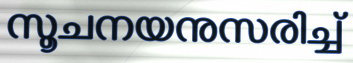
സൂചനയനുസരിച്ച്